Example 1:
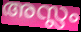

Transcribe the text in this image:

അസ്ലം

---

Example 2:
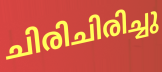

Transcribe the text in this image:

ചിരിചിരിച്ചു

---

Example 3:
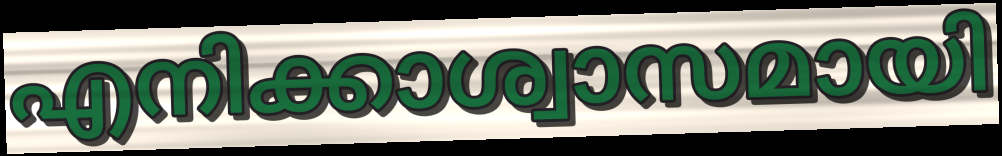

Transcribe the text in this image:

എനിക്കാശ്വാസമായി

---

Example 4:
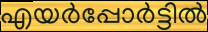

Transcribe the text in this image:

എയർപ്പോർട്ടിൽ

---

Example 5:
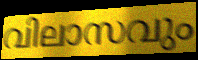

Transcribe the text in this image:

വിലാസവും